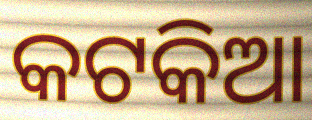
କଟକିଆ